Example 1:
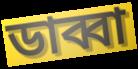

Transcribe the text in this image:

ডাব্বা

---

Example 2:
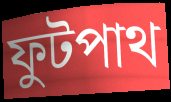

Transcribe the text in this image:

ফুটপাথ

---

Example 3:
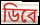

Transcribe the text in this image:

ডিবে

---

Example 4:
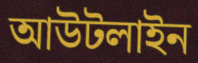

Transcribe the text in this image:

আউটলাইন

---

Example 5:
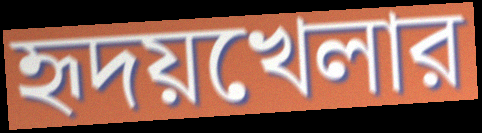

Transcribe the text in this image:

হৃদয়খেলার